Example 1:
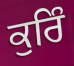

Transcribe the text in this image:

ਕੁਰਿੰ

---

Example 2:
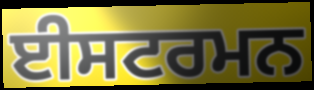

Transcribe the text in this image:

ਈਸਟਰਮਨ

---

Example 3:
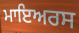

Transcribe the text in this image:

ਮਾਇਅਰਸ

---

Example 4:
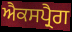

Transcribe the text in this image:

ਐਕਸਪ੍ਰੈਗ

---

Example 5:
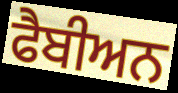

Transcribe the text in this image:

ਫੈਬੀਅਨ